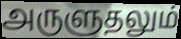
அருளுதலும்